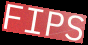
FIPS